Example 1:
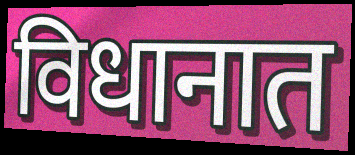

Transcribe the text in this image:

विधानात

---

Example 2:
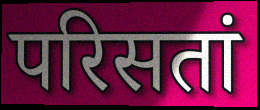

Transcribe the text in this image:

परिसतां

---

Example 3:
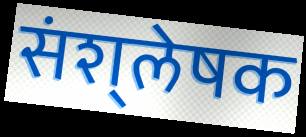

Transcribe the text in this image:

संश्लेषक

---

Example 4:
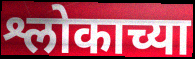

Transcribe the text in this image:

श्लोकाच्या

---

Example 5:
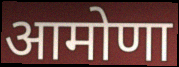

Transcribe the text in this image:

आमोणा